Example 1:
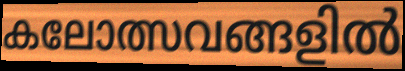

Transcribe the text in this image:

കലോത്സവങ്ങളിൽ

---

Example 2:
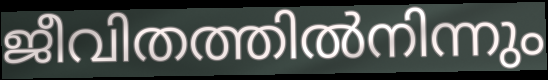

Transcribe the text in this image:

ജീവിതത്തിൽനിന്നും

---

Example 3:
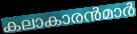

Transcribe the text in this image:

കലാകാരൻമാർ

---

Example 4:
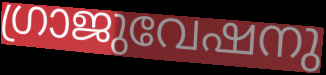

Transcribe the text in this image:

ഗ്രാജുവേഷനു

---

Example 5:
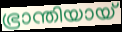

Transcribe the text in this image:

ഭ്രാന്തിയായ്